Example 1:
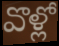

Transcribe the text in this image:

వొళ్లో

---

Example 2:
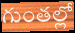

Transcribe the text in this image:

గుంతల్లో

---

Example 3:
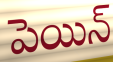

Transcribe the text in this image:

పెయిన్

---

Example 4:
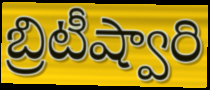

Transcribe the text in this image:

బ్రిటీష్వారి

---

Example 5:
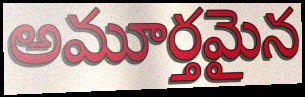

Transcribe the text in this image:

అమూర్తమైన